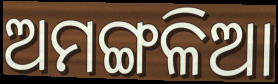
ଅମଙ୍ଗଳିଆ